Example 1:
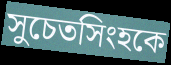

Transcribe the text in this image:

সুচেতসিংহকে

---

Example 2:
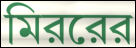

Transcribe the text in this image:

মিররের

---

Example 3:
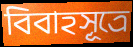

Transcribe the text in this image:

বিবাহসূত্রে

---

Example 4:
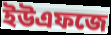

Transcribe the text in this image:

ইউএফজে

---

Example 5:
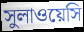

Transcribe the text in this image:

সুলাওয়েসি